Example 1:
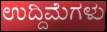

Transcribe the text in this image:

ಉದ್ದಿಮೆಗಳು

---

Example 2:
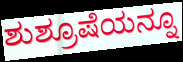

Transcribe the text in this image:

ಶುಶ್ರೂಷೆಯನ್ನೂ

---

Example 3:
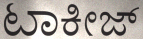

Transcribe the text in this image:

ಟಾಕೀಜ್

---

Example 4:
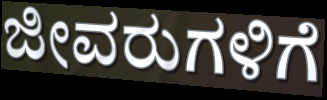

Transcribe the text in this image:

ಜೀವರುಗಳಿಗೆ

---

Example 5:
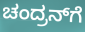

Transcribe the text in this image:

ಚಂದ್ರನ್‌ಗೆ